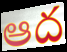
ఆద